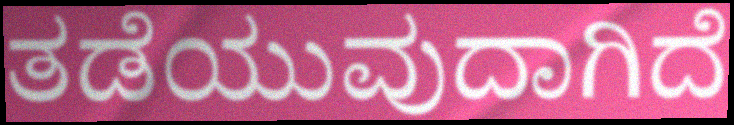
ತಡೆಯುವುದಾಗಿದೆ